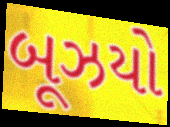
બૂઝયો